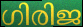
ഗിരിജ